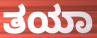
ತಯಾ